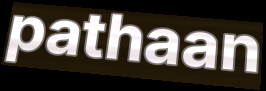
pathaan